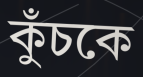
কুঁচকে